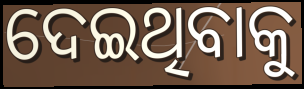
ଦେଇଥିବାକୁ